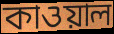
কাওয়াল